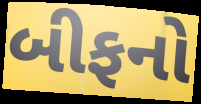
બીફનો